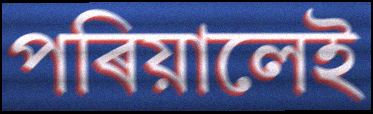
পৰিয়ালেই